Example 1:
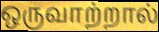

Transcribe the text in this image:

ஒருவாற்றால்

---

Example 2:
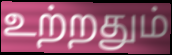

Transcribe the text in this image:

உற்றதும்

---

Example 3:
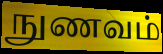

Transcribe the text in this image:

நுணவம்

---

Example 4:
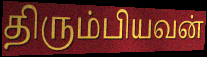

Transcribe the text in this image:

திரும்பியவன்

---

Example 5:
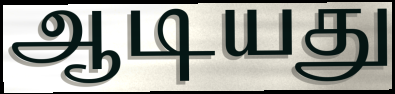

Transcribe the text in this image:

ஆடியது